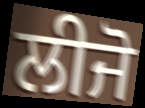
ਲੀਜੋ